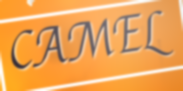
CAMEL